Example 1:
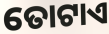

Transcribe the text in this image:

ତୋଟାଏ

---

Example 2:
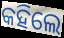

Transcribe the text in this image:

କହିଲେ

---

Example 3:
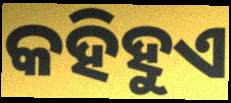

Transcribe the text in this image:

କହିହୁଏ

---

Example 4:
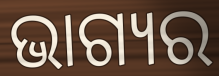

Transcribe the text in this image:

ଭାଗ୍ୟର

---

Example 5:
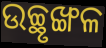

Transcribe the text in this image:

ଉଚ୍ଛୃଙ୍ଖଳ